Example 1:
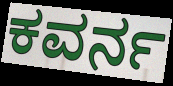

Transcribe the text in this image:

ಕವರ್ನ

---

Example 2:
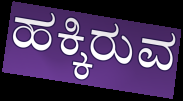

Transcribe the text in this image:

ಹಕ್ಕಿರುವ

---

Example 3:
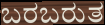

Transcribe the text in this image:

ಬರಬರುತ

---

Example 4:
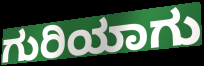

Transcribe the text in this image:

ಗುರಿಯಾಗು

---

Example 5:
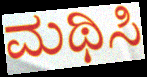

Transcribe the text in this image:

ಮಥಿಸಿ